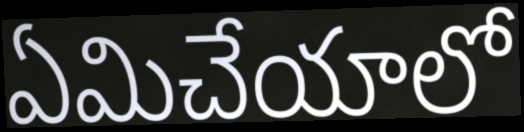
ఏమిచేయాలో